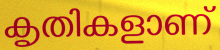
കൃതികളാണ്